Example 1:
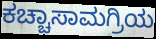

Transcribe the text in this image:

ಕಚ್ಚಾಸಾಮಗ್ರಿಯ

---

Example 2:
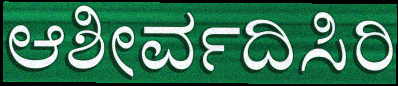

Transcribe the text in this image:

ಆಶೀರ್ವದಿಸಿರಿ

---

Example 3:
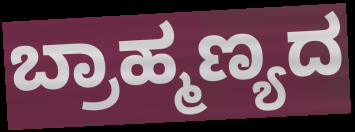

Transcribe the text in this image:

ಬ್ರಾಹ್ಮಣ್ಯದ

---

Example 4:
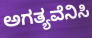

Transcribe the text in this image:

ಅಗತ್ಯವೆನಿಸಿ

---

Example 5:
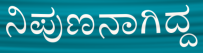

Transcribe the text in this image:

ನಿಪುಣನಾಗಿದ್ದ